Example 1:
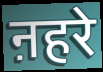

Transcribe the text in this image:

ऩहरे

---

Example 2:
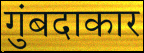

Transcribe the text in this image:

गुंबदाकार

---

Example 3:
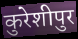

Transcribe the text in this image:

कुरेशीपुर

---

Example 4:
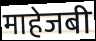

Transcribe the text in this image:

माहेजबी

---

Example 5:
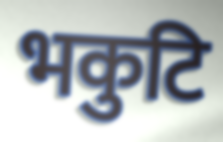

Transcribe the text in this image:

भकुटि